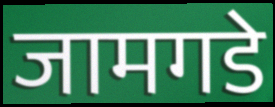
जामगडे